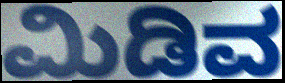
ಮಿಡಿವ